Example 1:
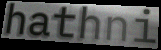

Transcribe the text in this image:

hathni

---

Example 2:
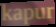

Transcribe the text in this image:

kapur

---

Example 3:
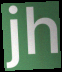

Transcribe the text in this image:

jh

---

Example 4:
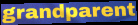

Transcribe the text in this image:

grandparent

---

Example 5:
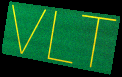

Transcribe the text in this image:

VLT